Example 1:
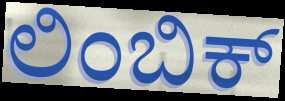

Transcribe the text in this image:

ಲಿಂಬಿಕ್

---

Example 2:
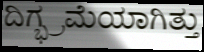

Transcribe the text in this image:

ದಿಗ್ಭ್ರಮೆಯಾಗಿತ್ತು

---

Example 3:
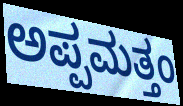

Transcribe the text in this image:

ಅಪ್ಪಮತ್ತಂ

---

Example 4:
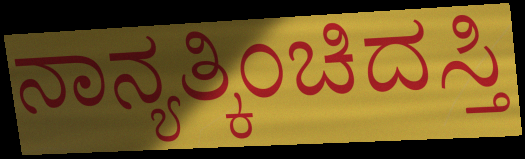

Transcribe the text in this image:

ನಾನ್ಯತ್ಕಿಂಚಿದಸ್ತಿ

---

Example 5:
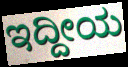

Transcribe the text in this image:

ಇದ್ದೀಯ